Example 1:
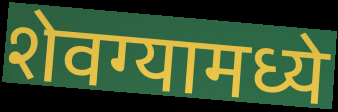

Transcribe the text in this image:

शेवग्यामध्ये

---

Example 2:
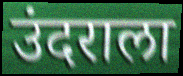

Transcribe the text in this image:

उंदराला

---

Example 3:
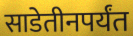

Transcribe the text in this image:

साडेतीनपर्यंत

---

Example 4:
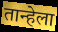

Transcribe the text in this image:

तान्हेला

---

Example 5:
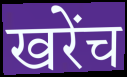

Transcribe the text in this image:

खरेंच